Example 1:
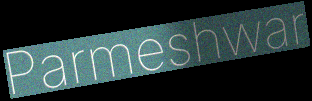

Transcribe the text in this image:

Parmeshwar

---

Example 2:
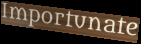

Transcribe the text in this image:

Importunate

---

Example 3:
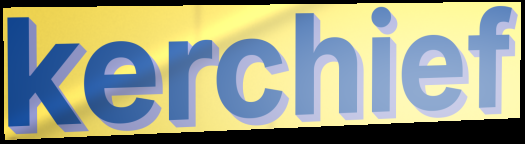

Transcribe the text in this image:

kerchief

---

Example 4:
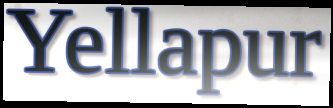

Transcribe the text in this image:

Yellapur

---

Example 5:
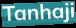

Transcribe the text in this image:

Tanhaji